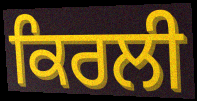
ਕਿਰਲੀ